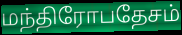
மந்திரோபதேசம்